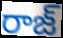
రాజ్